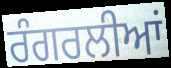
ਰੰਗਰਲੀਆਂ